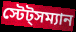
স্টেট্সম্যান